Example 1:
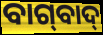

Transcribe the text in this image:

ବାଗ୍‌ବାଦ୍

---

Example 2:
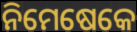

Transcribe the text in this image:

ନିମେଷେକେ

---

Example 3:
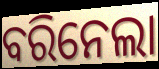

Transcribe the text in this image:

ବରିନେଲା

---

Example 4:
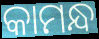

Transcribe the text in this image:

କାମନ୍ଧ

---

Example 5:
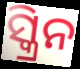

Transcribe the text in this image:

ସ୍କ୍ରିନ